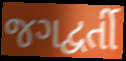
જગદ્વર્તી